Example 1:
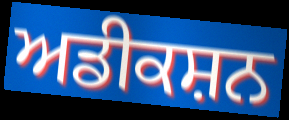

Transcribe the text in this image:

ਅਡੀਕਸ਼ਨ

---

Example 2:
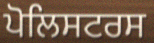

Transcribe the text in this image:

ਪੋਲਿਸਟਰਸ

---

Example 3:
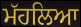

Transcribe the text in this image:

ਮੱਹਲਿਆ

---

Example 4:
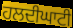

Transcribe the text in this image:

ਹਲਦੀਘਾਟੀ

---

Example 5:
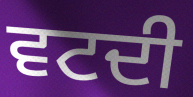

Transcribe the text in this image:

ਵਟਦੀ